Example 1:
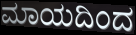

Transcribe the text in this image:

ಮಾಯದಿಂದ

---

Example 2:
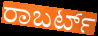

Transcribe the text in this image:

ರಾಬರ್ಟ್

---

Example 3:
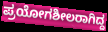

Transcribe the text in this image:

ಪ್ರಯೋಗಶೀಲರಾಗಿದ್ದ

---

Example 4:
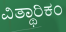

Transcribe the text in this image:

ವಿತ್ಥಾರಿಕಂ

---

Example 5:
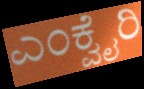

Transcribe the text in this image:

ಎಂಕ್ವೈರಿ